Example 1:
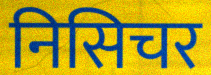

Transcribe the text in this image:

निसिचर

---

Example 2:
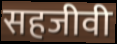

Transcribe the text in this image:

सहजीवी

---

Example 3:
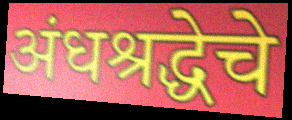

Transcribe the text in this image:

अंधश्रद्धेचे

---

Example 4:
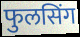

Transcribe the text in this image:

फुलसिंग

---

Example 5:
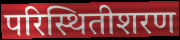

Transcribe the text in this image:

परिस्थितीशरण